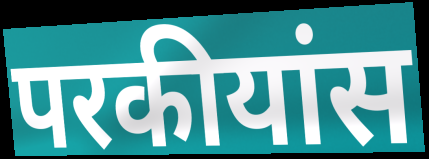
परकीयांस